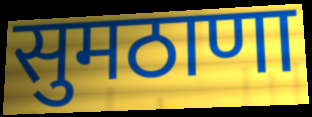
सुमठाणा